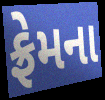
ફ્રેમના